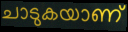
ചാടുകയാണ്